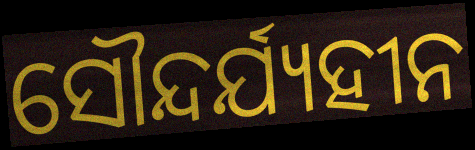
ସୌନ୍ଦର୍ଯ୍ୟହୀନ